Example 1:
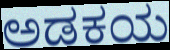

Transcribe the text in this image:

ಅಡಕಯ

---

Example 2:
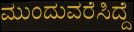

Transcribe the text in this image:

ಮುಂದುವರೆಸಿದ್ದೆ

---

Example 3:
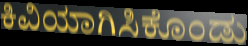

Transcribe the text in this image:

ಕಿವಿಯಾಗಿಸಿಕೊಂಡು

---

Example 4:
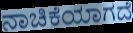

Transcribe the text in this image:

ನಾಚಿಕೆಯಾಗದೆ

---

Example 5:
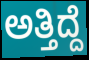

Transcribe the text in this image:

ಅತ್ತಿದ್ದೆ